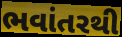
ભવાંતરથી